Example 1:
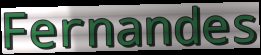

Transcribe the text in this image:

Fernandes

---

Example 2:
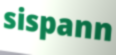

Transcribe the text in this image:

sispann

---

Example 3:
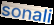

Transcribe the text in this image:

sonali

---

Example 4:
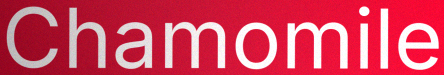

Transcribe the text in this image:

Chamomile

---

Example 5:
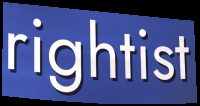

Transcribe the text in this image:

rightist